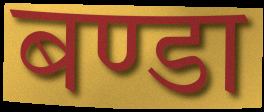
बण्डा